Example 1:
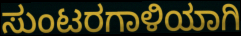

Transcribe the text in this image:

ಸುಂಟರಗಾಳಿಯಾಗಿ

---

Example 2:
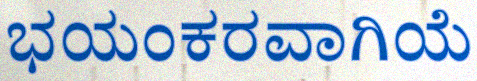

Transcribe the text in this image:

ಭಯಂಕರವಾಗಿಯೆ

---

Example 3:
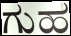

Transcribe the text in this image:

ಗುಹ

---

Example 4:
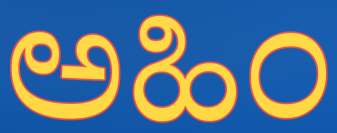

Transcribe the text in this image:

ಅಹಿಂ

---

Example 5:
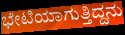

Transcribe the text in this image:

ಭೇಟಿಯಾಗುತ್ತಿದ್ದನು